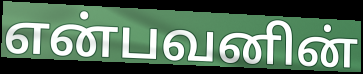
என்பவனின்